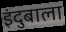
इंदुबाला